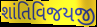
શાંતિવિજયજી